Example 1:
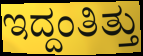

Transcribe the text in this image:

ಇದ್ದಂತಿತ್ತು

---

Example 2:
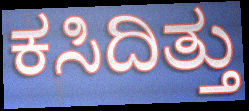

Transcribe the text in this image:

ಕಸಿದಿತ್ತು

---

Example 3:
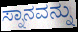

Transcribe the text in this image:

ಸ್ನಾನವನ್ನು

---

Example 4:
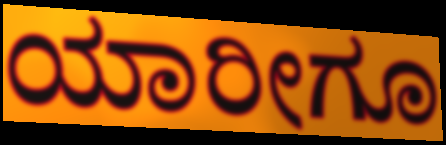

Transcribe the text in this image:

ಯಾರೀಗೂ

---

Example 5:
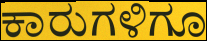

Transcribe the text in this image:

ಕಾರುಗಳಿಗೂ